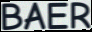
BAER